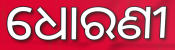
ଧୋରଣୀ